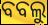
ବବଲୁ